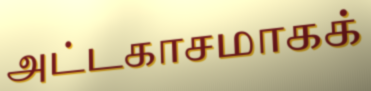
அட்டகாசமாகக்